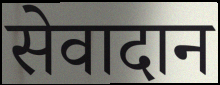
सेवादान